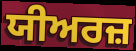
ਯੀਅਰਜ਼